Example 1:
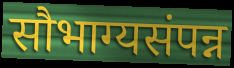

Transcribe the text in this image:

सौभाग्यसंपन्न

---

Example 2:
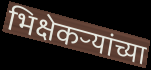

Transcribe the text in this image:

भिक्षेकऱ्यांच्या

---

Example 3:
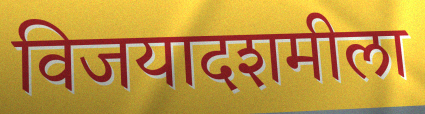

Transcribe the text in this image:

विजयादशमीला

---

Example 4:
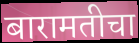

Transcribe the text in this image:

बारामतीचा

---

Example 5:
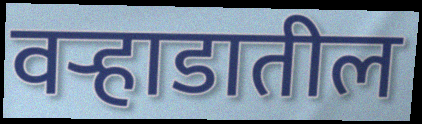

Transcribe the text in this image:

वर्‍हाडातील